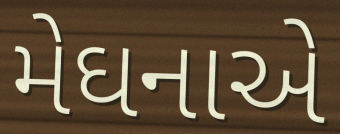
મેઘનાએ